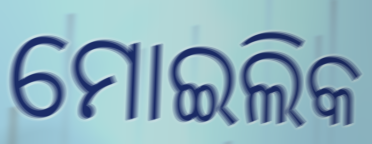
ମୋଇଲିକ